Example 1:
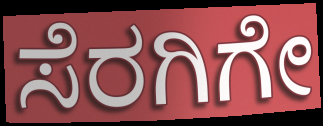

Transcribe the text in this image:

ಸೆರಗಿಗೇ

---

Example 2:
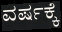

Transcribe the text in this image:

ವರ್ಷಕ್ಕೆ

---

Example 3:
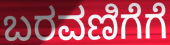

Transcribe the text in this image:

ಬರವಣಿಗೆಗೆ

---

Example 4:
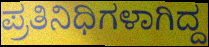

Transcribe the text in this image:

ಪ್ರತಿನಿಧಿಗಳಾಗಿದ್ದ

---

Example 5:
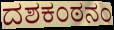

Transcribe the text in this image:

ದಶಕಂಠನಂ